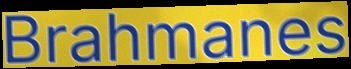
Brahmanes